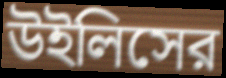
উইলিসের